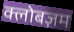
क्लोबज़म